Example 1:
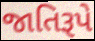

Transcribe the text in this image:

જાતિરૂપે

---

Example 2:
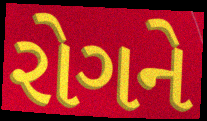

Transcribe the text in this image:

રોગને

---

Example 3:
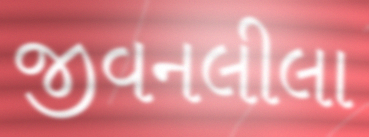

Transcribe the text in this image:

જીવનલીલા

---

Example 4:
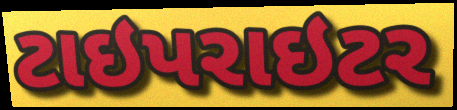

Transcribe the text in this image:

ટાઇપરાઇટર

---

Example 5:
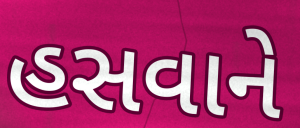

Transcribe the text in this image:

હસવાને